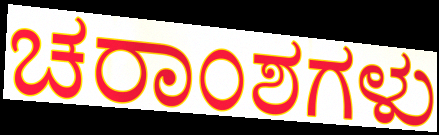
ಚರಾಂಶಗಳು